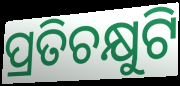
ପ୍ରତିଚକ୍ଷୁଟି